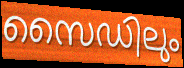
സൈഡിലും